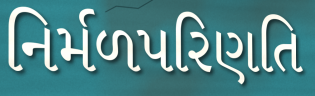
નિર્મળપરિણતિ